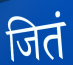
जितं